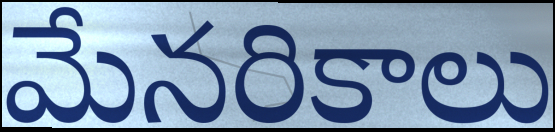
మేనరికాలు